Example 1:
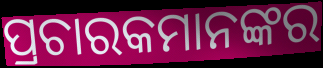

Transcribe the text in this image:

ପ୍ରଚାରକମାନଙ୍କର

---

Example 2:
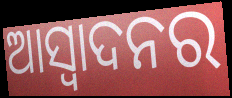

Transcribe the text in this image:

ଆସ୍ବାଦନର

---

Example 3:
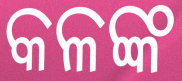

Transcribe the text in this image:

କଳଙ୍କ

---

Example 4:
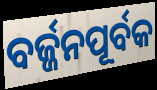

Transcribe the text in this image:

ବର୍ଜ୍ଜନପୂର୍ବକ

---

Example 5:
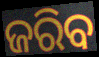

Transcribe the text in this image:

ଜରିବ